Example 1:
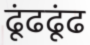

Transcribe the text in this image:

ढूंढढूंढ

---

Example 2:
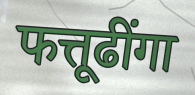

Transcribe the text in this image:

फत्तूढींगा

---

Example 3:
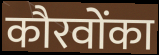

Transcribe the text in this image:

कौरवोंका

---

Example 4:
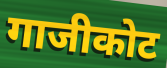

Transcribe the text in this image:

गाजीकोट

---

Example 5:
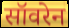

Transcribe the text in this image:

सॉवरेन